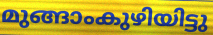
മുങ്ങാംകുഴിയിട്ടു